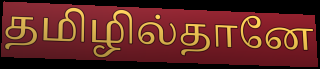
தமிழில்தானே